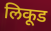
लिकूड